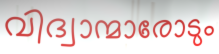
വിദ്വാന്മാരോടും